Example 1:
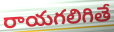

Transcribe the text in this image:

రాయగలిగితే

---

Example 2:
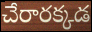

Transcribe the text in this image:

చేరారక్కడ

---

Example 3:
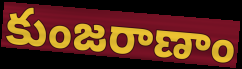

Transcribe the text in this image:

కుంజరాణాం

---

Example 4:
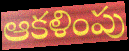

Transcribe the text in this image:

ఆకళింపు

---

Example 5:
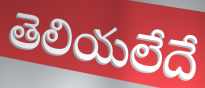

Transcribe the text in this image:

తెలియలేదే